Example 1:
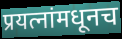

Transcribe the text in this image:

प्रयत्नांमधूनच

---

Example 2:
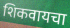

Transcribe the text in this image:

शिकवायचा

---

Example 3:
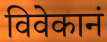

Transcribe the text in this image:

विवेकानं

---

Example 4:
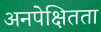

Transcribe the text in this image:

अनपेक्षितता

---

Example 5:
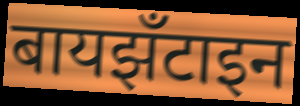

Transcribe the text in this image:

बायझँटाइन